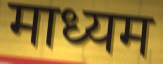
माध्यम